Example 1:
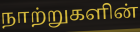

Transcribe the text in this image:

நாற்றுகளின்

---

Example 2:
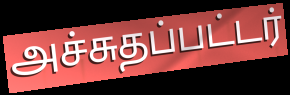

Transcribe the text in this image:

அச்சுதப்பட்டர்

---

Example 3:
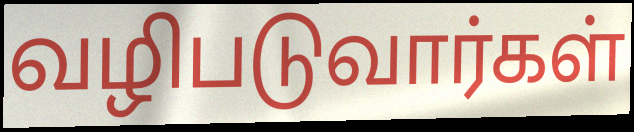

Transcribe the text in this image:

வழிபடுவார்கள்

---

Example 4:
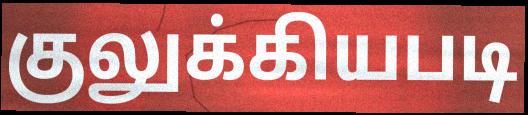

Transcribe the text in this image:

குலுக்கியபடி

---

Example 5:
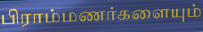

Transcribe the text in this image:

பிராம்மணர்களையும்